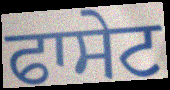
ਫਾਸੇਟ